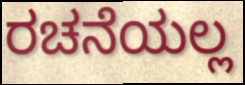
ರಚನೆಯಲ್ಲ